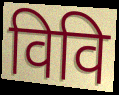
विवि